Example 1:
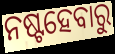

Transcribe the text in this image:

ନଷ୍ଟହେବାରୁ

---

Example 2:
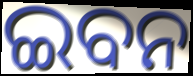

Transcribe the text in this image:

ଇବନ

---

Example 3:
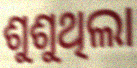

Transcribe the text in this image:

ଶୁଶୁଥିଲା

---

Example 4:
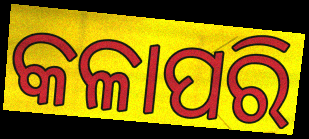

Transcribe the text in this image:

କଳାପରି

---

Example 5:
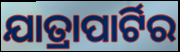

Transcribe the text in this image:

ଯାତ୍ରାପାର୍ଟିର